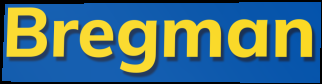
Bregman